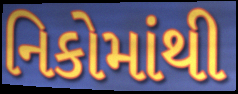
નિકોમાંથી